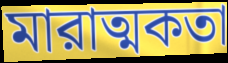
মারাত্মকতা